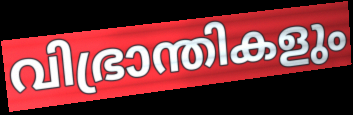
വിഭ്രാന്തികളും